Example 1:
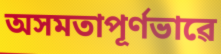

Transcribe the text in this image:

অসমতাপূৰ্ণভাৱে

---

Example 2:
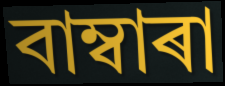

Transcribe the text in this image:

বাম্বাৰা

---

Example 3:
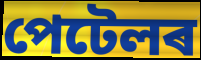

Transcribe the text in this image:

পেটেলৰ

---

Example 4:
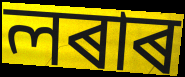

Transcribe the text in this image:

লৰাৰ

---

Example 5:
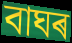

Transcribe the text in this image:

বাঘৰ